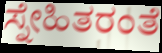
ಸ್ನೇಹಿತರಂತೆ